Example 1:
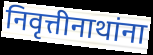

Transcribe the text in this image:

निवृत्तीनाथांना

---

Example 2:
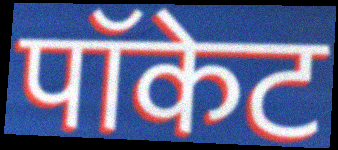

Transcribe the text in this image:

पॉकेट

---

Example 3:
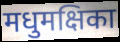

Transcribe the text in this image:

मधुमक्षिका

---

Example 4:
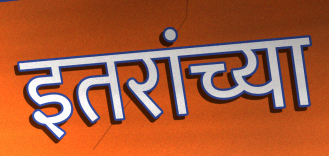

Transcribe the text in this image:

इतरांच्या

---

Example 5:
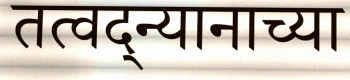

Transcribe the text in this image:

तत्वद्न्यानाच्या